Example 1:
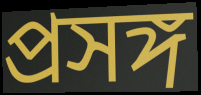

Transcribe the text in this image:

প্ৰসঙ্গ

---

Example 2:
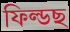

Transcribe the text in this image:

ফিল্ডছ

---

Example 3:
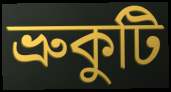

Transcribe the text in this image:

ভ্ৰুকুটি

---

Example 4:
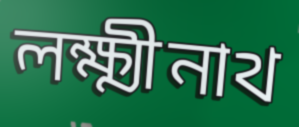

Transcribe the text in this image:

লক্ষ্মীনাথ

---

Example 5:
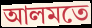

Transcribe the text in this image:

আলমতে